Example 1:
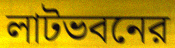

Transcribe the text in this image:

লাটভবনের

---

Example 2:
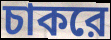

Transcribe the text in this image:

চাকরে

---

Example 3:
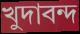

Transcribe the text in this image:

খুদাবন্দ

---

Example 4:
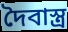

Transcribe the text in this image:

দৈবাস্ত্র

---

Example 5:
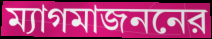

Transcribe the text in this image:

ম্যাগমাজননের